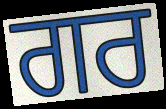
ਗਰ